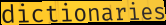
dictionaries